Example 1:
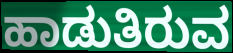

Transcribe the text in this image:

ಹಾಡುತಿರುವ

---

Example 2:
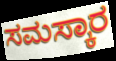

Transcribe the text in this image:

ಸಮಸ್ಕಾರ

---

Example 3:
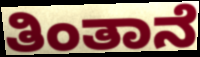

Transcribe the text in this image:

ತಿಂತಾನೆ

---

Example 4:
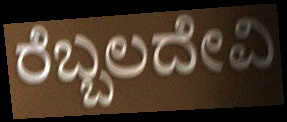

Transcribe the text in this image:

ರೆಬ್ಬಲದೇವಿ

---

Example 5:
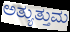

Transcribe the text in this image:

ಅತ್ಯುತ್ತುಮ